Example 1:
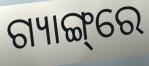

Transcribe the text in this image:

ଗ୍ୟାଙ୍ଗ୍‌ରେ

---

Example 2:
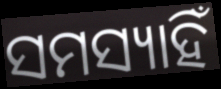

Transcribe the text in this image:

ସମସ୍ୟାହିଁ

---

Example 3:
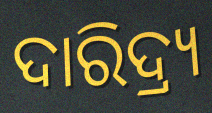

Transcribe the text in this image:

ଦାରିଦ୍ର୍ୟ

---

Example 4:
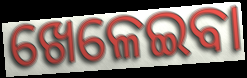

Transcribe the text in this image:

ଖେଳେଇବା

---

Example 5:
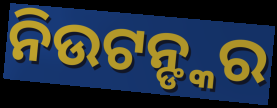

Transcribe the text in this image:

ନିଉଟନ୍ଙ୍କର